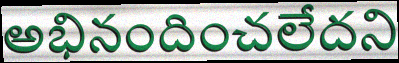
అభినందించలేదని